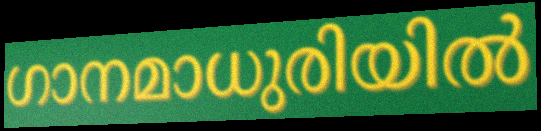
ഗാനമാധുരിയിൽ